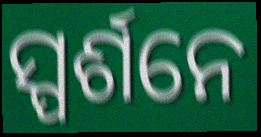
ସ୍ପର୍ଶନେ